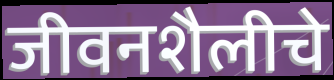
जीवनशैलीचे